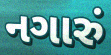
નગારું